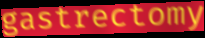
gastrectomy